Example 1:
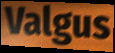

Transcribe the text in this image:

Valgus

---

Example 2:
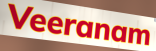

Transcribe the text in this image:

Veeranam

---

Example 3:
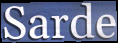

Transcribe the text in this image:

Sarde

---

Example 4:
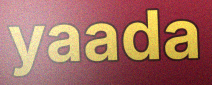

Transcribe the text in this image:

yaada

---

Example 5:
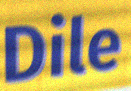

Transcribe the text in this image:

Dile